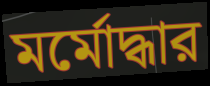
মর্মোদ্ধার